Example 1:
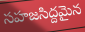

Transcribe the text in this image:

సహజసిద్దమైన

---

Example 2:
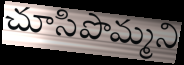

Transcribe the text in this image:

చూసిపొమ్మని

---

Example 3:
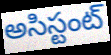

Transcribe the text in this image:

అసిస్టంట్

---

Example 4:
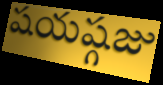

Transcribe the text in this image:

షయష్గజు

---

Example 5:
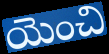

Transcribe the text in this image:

యెంచి